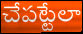
చేపట్టేలా